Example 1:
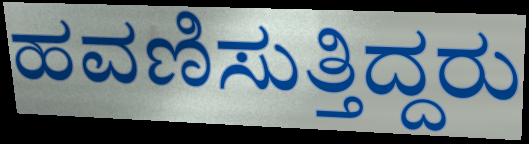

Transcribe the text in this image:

ಹವಣಿಸುತ್ತಿದ್ದರು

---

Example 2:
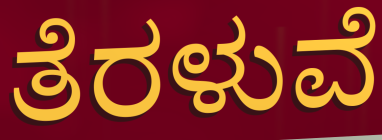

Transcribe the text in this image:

ತೆರಳುವೆ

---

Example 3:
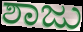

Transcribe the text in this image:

ಶಾಜು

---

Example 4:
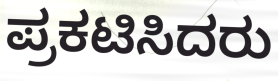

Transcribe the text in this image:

ಪ್ರಕಟಿಸಿದರು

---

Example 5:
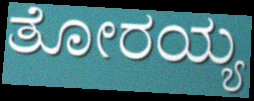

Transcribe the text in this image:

ತೋರಯ್ಯ